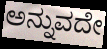
ಅನ್ನುವದೇ